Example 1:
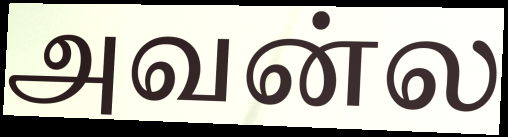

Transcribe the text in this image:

அவன்ல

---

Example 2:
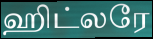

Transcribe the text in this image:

ஹிட்லரே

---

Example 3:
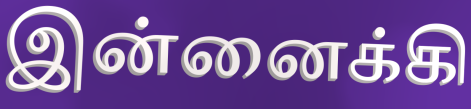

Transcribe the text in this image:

இன்னைக்கி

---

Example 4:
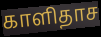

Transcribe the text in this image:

காளிதாச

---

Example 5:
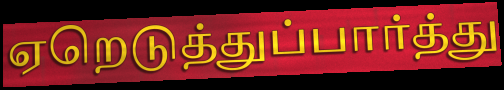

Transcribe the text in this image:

ஏறெடுத்துப்பார்த்து